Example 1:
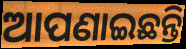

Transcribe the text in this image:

ଆପଣାଇଛନ୍ତି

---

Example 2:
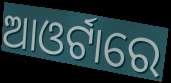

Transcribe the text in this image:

ଆଓର୍ଟାରେ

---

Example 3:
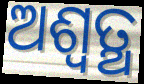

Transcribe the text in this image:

ଅଶ୍ବତ୍ଥ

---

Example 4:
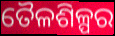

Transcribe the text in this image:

ତୈଳଶିଳ୍ପର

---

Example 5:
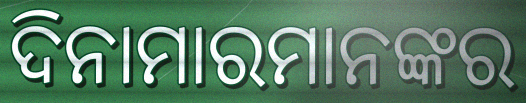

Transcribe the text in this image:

ଦିନାମାରମାନଙ୍କର